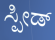
ಸ್ಪೀಡ್